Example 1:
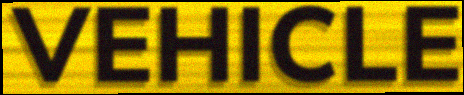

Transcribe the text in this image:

VEHICLE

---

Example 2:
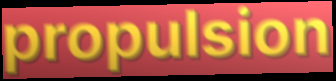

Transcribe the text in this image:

propulsion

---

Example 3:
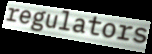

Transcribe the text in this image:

regulators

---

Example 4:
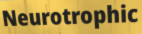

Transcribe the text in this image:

Neurotrophic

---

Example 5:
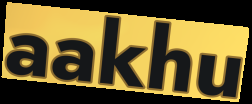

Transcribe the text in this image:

aakhu